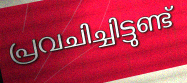
പ്രവചിച്ചിട്ടുണ്ട്